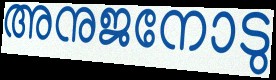
അനുജനോടു